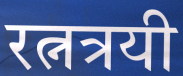
रत्नत्रयी